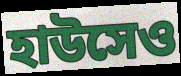
হাউসেও